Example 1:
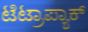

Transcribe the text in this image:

ಟೆಟ್ರಾಪ್ಯಾಕ್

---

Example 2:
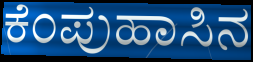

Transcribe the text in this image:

ಕೆಂಪುಹಾಸಿನ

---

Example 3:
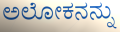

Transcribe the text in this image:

ಅಲೋಕನನ್ನು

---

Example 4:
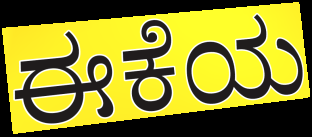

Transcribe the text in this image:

ಈಕೆಯ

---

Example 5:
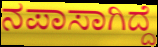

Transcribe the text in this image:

ನಪಾಸಾಗಿದ್ದೆ